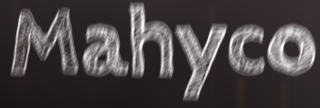
Mahyco